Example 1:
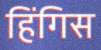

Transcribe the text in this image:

हिंगिस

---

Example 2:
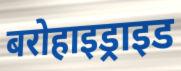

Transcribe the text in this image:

बरोहाइड्राइड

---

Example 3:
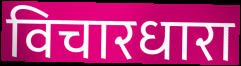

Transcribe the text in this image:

विचारधारा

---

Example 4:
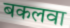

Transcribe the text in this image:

बकलवा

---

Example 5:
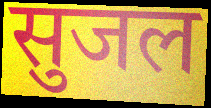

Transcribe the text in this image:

सुजल